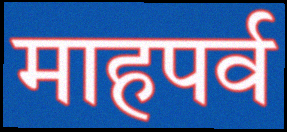
माहपर्व